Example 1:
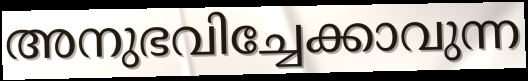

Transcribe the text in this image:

അനുഭവിച്ചേക്കാവുന്ന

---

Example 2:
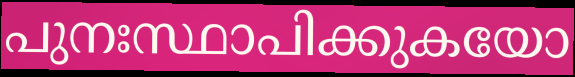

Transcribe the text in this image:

പുനഃസ്ഥാപിക്കുകയോ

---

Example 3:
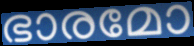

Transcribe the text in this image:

ഭാരമോ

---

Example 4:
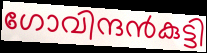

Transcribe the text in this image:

ഗോവിന്ദൻകുട്ടി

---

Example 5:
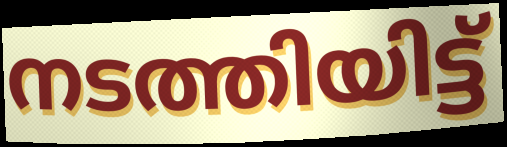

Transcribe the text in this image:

നടത്തിയിട്ട്